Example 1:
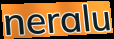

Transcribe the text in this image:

neralu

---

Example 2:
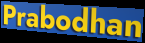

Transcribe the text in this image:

Prabodhan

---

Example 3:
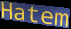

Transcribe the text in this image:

Hatem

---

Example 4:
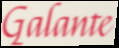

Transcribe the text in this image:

Galante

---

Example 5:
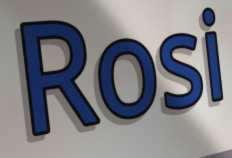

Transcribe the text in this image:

Rosi